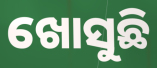
ଖୋସୁଛି